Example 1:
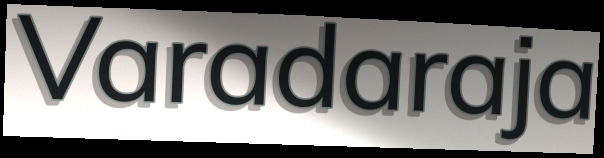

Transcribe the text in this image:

Varadaraja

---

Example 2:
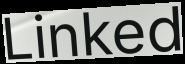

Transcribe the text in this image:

Linked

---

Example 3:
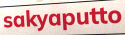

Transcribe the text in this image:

sakyaputto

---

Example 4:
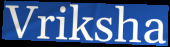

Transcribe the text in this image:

Vriksha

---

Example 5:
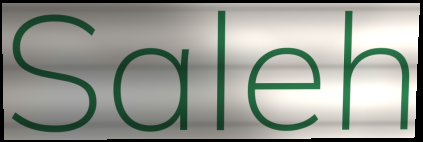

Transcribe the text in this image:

Saleh